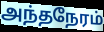
அந்தநேரம்